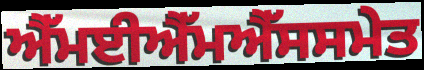
ਐੱਮਈਐੱਮਐੱਸਸਮੇਤ